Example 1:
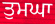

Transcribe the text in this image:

ਤੁਮਘਾ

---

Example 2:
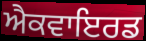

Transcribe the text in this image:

ਐਕਵਾਇਰਡ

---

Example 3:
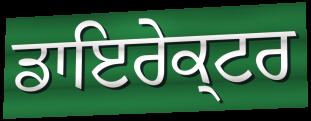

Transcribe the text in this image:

ਡਾਇਰੇਕ੍ਟਰ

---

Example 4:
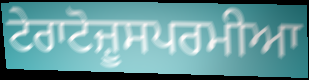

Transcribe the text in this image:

ਟੇਰਾਟੋਜ਼ੂਸਪਰਮੀਆ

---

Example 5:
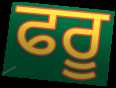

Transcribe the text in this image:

ਫਰੂ